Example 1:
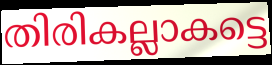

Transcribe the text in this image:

തിരികല്ലാകട്ടെ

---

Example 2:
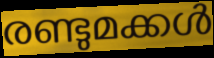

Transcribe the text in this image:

രണ്ടുമക്കൾ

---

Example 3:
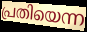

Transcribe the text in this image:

പ്രതിയെന്ന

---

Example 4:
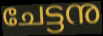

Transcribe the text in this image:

ചേട്ടനു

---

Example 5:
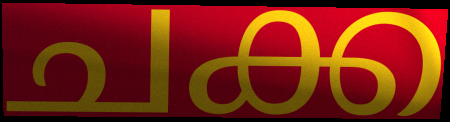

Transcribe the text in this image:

ചക്ക